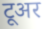
टूअर